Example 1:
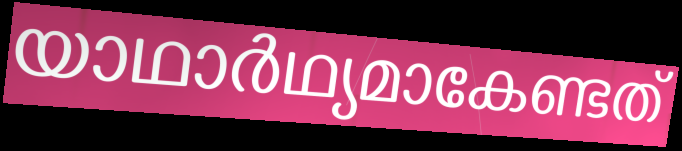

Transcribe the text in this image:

യാഥാർഥ്യമാകേണ്ടത്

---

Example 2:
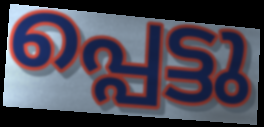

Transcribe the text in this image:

പ്പെട്ടു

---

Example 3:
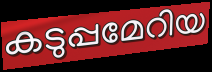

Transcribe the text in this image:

കടുപ്പമേറിയ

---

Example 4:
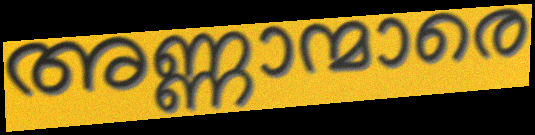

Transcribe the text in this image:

അണ്ണാന്മാരെ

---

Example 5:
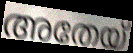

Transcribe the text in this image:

അതേയ്